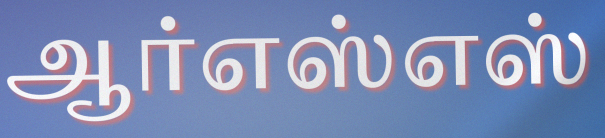
ஆர்எஸ்எஸ்